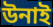
উনাই